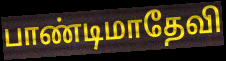
பாண்டிமாதேவி